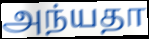
அந்யதா